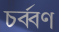
চর্ব্বণ